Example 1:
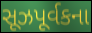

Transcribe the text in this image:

સૂઝપૂર્વકના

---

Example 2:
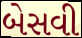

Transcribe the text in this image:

બેસવી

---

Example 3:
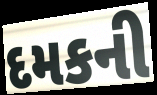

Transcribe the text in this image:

દમકની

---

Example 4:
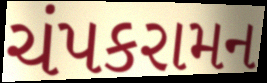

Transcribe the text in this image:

ચંપકરામન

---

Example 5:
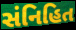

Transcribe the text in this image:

સંનિહિત